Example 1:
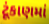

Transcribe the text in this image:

ટૂંકાણમાં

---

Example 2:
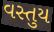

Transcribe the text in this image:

વસ્તુય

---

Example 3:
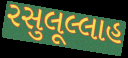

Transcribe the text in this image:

રસુલૂલ્લાહ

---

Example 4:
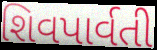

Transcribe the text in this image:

શિવપાર્વતી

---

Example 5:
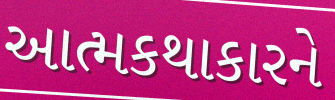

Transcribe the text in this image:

આત્મકથાકારને